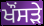
ਖੌਂਸੜੇ